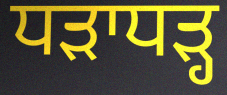
ਧੜਾਧੜ੍ਹ